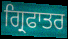
ਗ੍ਰਿਫਾਤਰ